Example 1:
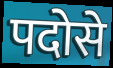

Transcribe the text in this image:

पदोसे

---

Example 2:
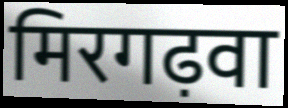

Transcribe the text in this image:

मिरगढ़वा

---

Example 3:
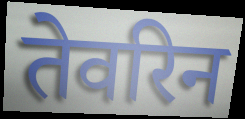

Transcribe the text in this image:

तेवरिन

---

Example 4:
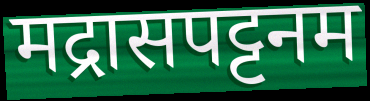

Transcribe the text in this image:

मद्रासपट्टनम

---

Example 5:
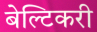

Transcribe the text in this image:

बेल्टिकरी